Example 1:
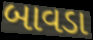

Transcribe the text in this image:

બાવડા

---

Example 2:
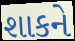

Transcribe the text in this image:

શાકને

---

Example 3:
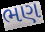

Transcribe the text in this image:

ભણ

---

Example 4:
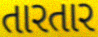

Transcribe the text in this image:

તારતાર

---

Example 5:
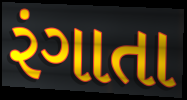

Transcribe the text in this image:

રંગાતા